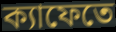
ক্যাফেতে